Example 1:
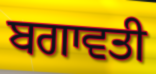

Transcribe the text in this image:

ਬਗਾਵਤੀ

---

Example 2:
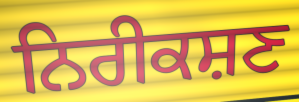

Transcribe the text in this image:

ਨਿਰੀਕਸ਼ਣ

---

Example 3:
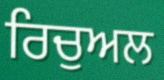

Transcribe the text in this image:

ਰਿਚੁਅਲ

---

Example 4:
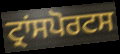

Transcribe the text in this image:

ਟ੍ਰਾਂਸਪੋਰਟਸ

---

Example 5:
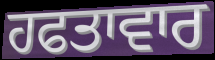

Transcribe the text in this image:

ਹਫਤਾਵਾਰ